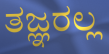
ತಜ್ಞರಲ್ಲ